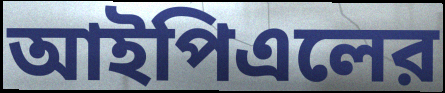
আইপিএলের